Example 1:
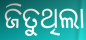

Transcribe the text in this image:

ଜିତୁଥିଲା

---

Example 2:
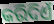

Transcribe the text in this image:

କରିଦିଏଁ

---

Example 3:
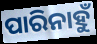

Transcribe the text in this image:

ପାରିନାହୁଁ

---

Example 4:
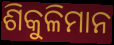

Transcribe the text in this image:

ଶିକୁଳିମାନ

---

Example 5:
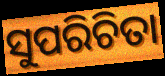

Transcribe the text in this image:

ସୁପରିଚିତା